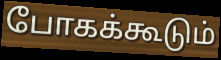
போகக்கூடும்